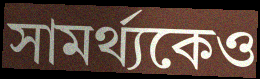
সামর্থ্যকেও